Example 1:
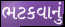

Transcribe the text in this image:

ભટકવાનું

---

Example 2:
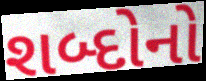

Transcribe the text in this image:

શબ્દોનો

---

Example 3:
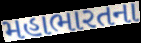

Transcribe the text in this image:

મહાભારતના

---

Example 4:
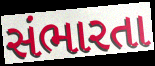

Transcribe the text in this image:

સંભારતા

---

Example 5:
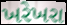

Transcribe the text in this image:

ખરેખરા